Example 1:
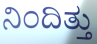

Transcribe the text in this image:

ನಿಂದಿತ್ತು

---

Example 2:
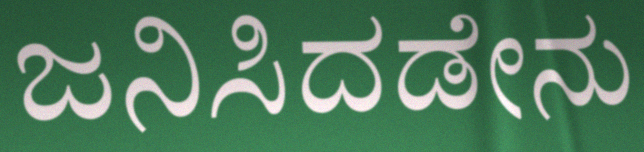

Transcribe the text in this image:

ಜನಿಸಿದಡೇನು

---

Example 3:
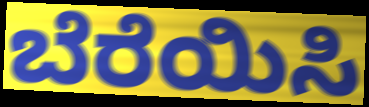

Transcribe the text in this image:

ಬೆರೆಯಿಸಿ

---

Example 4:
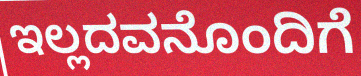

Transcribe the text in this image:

ಇಲ್ಲದವನೊಂದಿಗೆ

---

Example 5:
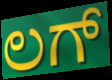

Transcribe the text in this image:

ಲಗ್